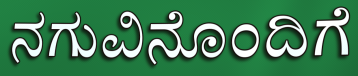
ನಗುವಿನೊಂದಿಗೆ